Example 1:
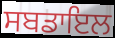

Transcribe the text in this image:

ਸਬਡਾਇਲ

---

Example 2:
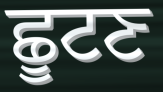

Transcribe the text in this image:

ਛੂਟਣ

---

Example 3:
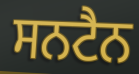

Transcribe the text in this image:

ਸਨਟੈਨ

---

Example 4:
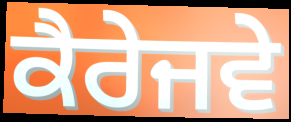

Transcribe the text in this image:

ਕੈਰੇਜਵੇ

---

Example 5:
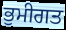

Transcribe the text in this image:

ਭੁਮੀਗਤ